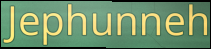
Jephunneh